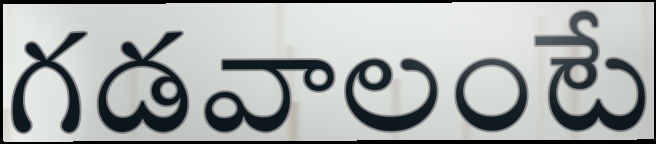
గడవాలంటే